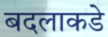
बदलाकडे